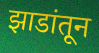
झाडांतून